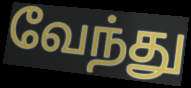
வேந்து